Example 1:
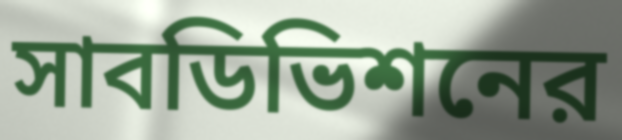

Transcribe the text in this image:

সাবডিভিশনের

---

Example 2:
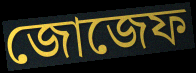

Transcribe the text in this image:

জোজেফ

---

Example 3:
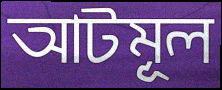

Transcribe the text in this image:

আটমূল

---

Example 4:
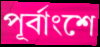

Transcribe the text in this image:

পূর্বাংশে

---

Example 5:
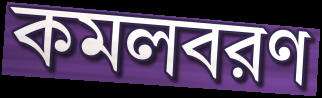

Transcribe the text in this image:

কমলবরণ